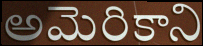
అమెరికాని